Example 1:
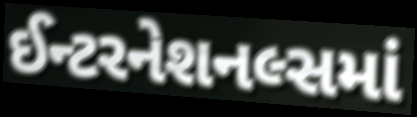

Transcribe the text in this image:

ઈન્ટરનેશનલ્સમાં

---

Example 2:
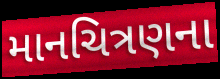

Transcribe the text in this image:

માનચિત્રણના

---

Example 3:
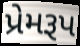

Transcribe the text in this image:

પ્રેમરૂપ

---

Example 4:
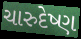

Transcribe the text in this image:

ચારુદેષ્ણ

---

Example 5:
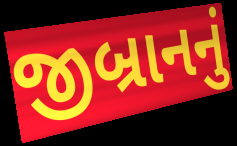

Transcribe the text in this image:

જીબ્રાનનું